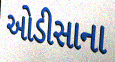
ઓડીસાના